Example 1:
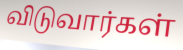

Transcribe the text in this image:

விடுவார்கள்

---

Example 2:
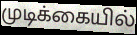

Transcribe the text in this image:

முடிக்கையில்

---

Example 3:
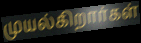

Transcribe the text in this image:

முயல்கிறார்கள்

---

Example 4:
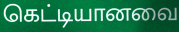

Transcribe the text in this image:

கெட்டியானவை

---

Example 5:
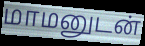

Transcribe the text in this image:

மாமனுடன்